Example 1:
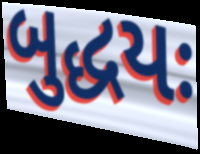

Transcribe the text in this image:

બુદ્ધયઃ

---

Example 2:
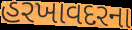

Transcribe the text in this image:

હરખાવદરના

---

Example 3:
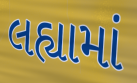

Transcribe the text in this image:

લહ્યામાં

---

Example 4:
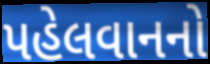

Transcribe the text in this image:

પહેલવાનનો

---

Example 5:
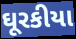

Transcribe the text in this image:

ઘૂરકીયા